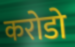
करोडो